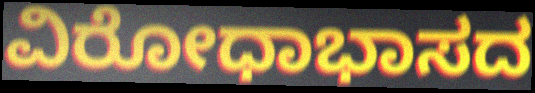
ವಿರೋಧಾಭಾಸದ